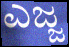
ಎಜ್ಜ